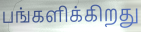
பங்களிக்கிறது